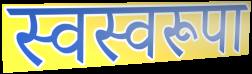
स्वस्वरूपा